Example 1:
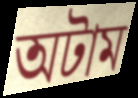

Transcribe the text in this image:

অটাম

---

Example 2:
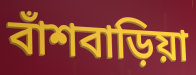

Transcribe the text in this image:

বাঁশবাড়িয়া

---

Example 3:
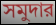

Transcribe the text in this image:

সমুদার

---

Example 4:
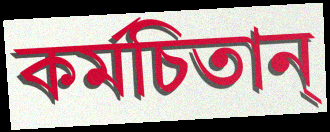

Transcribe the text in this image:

কর্মচিতান্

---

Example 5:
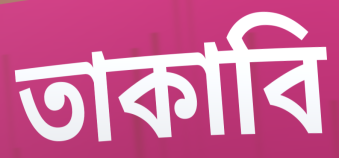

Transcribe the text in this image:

তাকাবি